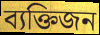
ব্যক্তিজন